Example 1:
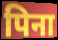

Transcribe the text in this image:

पिना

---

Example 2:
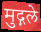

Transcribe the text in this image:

मुद्गले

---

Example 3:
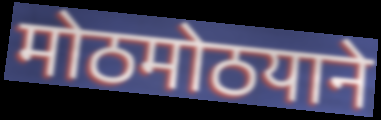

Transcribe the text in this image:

मोठमोठयाने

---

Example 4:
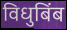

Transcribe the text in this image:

विधुबिंब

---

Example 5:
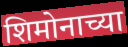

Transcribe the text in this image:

शिमोनाच्या